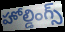
హోల్డింగ్స్